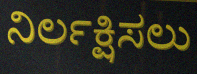
ನಿರ್ಲಕ್ಷಿಸಲು